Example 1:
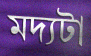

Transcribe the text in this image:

মদ্যটা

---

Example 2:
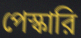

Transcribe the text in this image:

পেস্কারি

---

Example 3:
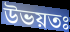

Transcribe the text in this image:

উভয়তঃ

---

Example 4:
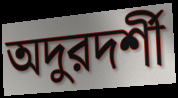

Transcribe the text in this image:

অদুরদর্শী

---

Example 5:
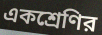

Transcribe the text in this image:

একশ্রেণির